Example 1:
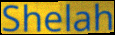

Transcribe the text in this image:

Shelah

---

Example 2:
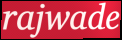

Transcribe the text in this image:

rajwade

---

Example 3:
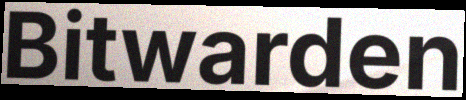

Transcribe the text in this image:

Bitwarden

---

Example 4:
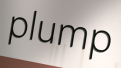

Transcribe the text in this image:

plump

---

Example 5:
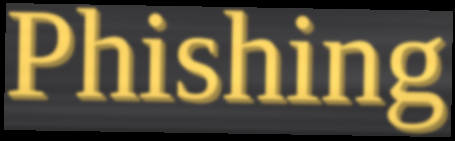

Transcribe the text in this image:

Phishing